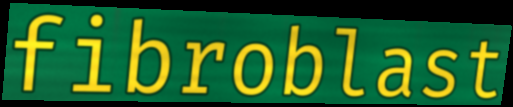
fibroblast